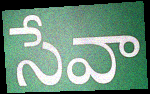
సేవా